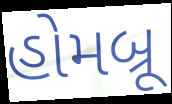
હોમબ્રૂ